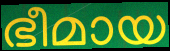
ഭീമായ